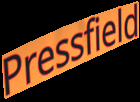
Pressfield